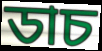
ডাচ